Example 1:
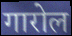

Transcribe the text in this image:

गारोल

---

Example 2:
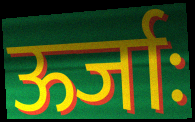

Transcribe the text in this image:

ऊर्जाः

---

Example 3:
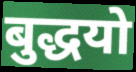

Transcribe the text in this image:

बुद्धयो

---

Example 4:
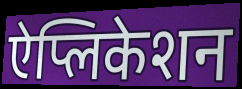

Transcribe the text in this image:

ऐप्लिकेशन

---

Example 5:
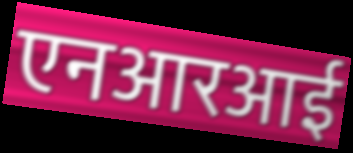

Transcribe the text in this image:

एनआरआई